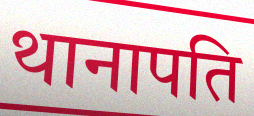
थानापति